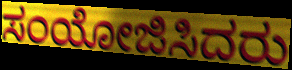
ಸಂಯೋಜಿಸಿದರು